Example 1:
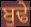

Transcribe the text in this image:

ਬੁਢੇ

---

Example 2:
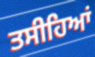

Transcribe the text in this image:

ਤਸੀਹਿਆਂ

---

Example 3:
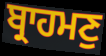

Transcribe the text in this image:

ਬ੍ਰਾਹਮਣੁ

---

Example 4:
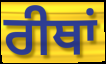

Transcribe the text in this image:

ਰੀਥਾਂ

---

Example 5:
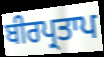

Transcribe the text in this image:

ਬੀਰਪ੍ਰਤਾਪ